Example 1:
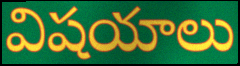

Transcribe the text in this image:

విషయాలు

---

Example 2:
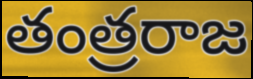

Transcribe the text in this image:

తంత్రరాజ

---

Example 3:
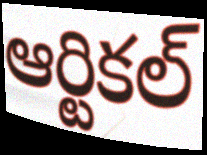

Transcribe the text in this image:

ఆర్టికల్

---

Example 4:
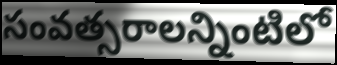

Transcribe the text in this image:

సంవత్సరాలన్నింటిలో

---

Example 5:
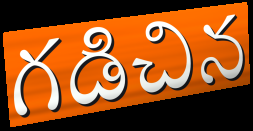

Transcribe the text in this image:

గడిచిన